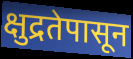
क्षुद्रतेपासून